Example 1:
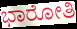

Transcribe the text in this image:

ಭಾರೋತಿ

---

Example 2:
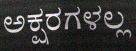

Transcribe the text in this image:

ಅಕ್ಷರಗಳಲ್ಲ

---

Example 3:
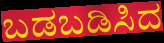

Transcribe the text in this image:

ಬಡಬಡಿಸಿದ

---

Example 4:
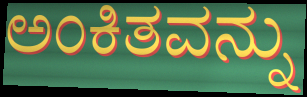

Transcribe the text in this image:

ಅಂಕಿತವನ್ನು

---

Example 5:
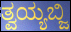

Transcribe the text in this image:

ತ್ವಯ್ಯಬ್ಜಿ